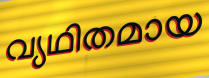
വ്യഥിതമായ